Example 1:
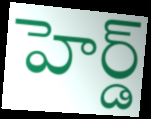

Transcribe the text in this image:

హెర్డ్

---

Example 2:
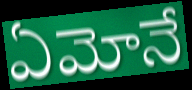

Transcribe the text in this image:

ఏమోనే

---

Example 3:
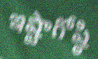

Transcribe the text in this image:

ఇష్టాగోష్ఠి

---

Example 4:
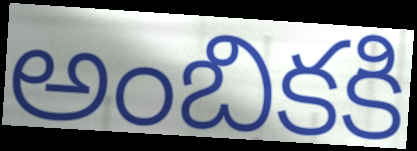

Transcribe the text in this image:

అంబికకి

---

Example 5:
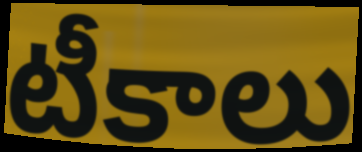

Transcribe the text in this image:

టీకాలు